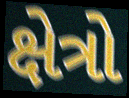
ક્ષેત્રો